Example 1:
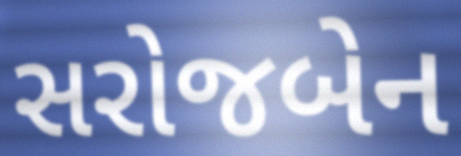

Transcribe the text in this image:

સરોજબેન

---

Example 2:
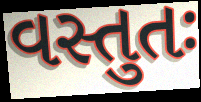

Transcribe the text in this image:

વસ્તુતઃ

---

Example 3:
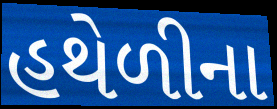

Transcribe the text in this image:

હથેળીના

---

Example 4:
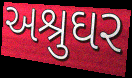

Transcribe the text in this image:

અશ્રુઘર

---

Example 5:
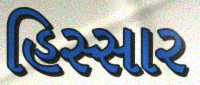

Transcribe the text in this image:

હિસ્સાર